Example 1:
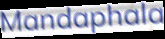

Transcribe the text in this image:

Mandaphala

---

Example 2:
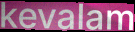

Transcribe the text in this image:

kevalam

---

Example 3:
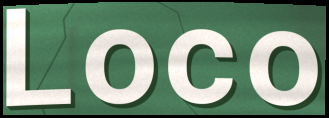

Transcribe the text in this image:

Loco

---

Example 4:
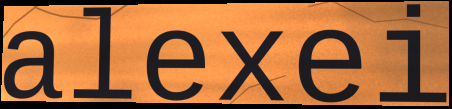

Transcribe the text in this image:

alexei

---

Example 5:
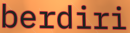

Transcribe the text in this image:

berdiri